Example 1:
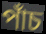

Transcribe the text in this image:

পাঁচ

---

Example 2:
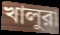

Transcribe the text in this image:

খালুরা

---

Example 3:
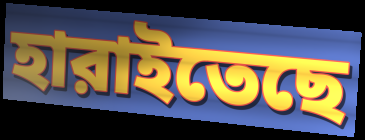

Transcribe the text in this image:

হারাইতেছে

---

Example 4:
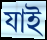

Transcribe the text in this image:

যাই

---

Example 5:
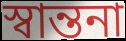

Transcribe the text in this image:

স্বান্তনা